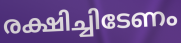
രക്ഷിച്ചിടേണം